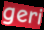
geri